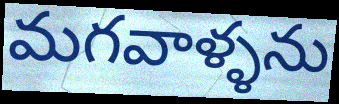
మగవాళ్ళను